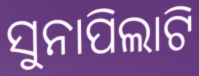
ସୁନାପିଲାଟି